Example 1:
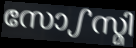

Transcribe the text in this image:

സോഽസ്മി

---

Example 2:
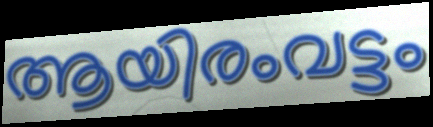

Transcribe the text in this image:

ആയിരംവട്ടം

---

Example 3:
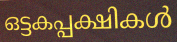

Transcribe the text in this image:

ഒട്ടകപ്പക്ഷികൾ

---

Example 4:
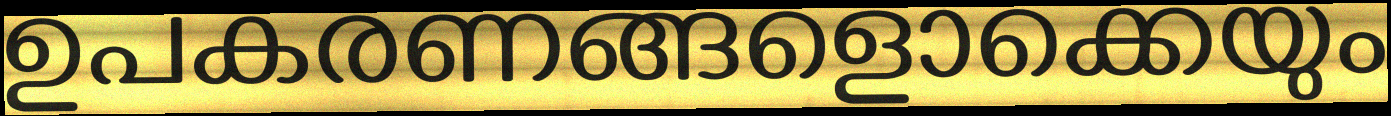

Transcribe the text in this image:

ഉപകരണങ്ങളൊക്കെയും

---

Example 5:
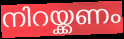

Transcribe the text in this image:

നിറയ്ക്കണം